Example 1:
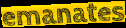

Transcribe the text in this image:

emanates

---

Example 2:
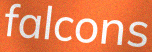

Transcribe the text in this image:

falcons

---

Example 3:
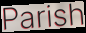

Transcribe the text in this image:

Parish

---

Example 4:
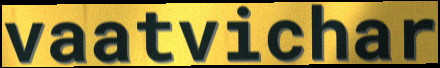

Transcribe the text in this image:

vaatvichar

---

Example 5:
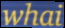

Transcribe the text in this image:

whai